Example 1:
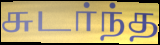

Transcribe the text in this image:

சுடர்ந்த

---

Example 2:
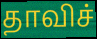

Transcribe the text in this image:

தாவிச்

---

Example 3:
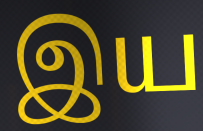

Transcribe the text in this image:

இய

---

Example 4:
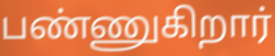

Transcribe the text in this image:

பண்ணுகிறார்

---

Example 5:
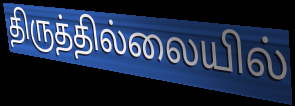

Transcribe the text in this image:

திருத்தில்லையில்